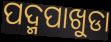
ପଦ୍ମପାଖୁଡା